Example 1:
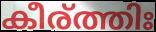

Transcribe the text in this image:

കീര്ത്തിഃ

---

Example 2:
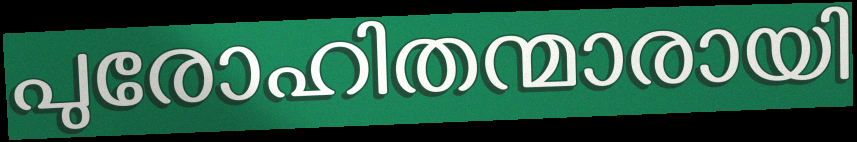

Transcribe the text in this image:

പുരോഹിതന്മാരായി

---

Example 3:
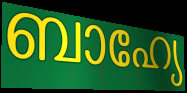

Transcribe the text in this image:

ബാഹ്യേ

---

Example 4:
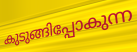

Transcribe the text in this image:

കുടുങ്ങിപ്പോകുന്ന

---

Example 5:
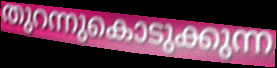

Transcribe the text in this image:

തുറന്നുകൊടുക്കുന്ന